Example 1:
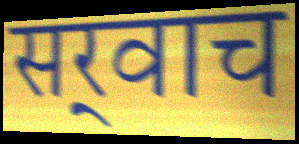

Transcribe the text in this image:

सर्वाच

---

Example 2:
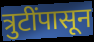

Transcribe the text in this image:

त्रुटींपासून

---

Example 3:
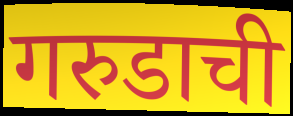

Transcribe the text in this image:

गरुडाची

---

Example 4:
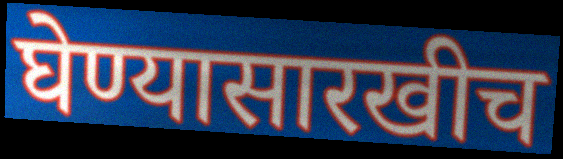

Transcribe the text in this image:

घेण्यासारखीच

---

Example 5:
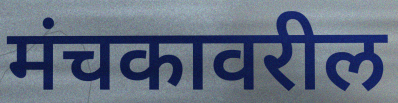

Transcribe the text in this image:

मंचकावरील